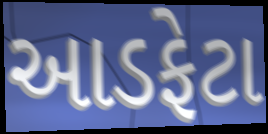
આડફેટા